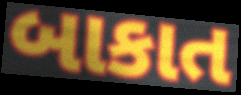
બાકાત